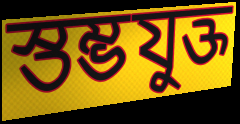
স্তম্ভযুক্ত